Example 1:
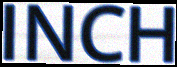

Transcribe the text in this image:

INCH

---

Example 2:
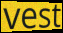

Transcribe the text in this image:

vest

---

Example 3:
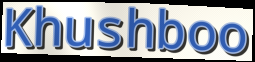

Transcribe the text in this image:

Khushboo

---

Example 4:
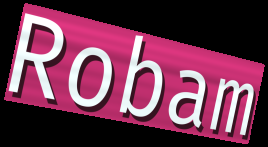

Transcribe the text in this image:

Robam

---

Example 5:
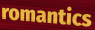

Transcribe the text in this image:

romantics